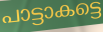
പാട്ടാകട്ടെ